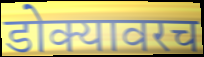
डोक्यावरच